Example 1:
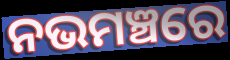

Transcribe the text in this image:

ନଭମଞ୍ଚରେ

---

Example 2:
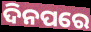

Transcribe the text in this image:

ଦିନପରେ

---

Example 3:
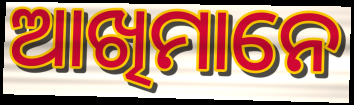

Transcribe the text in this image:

ଆଖିମାନେ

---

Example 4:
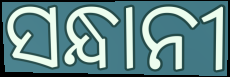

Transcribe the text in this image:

ସନ୍ଧାନୀ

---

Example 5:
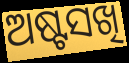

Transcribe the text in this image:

ଅଷ୍ଟସଖି